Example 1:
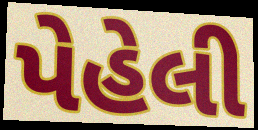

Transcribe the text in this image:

પેહેલી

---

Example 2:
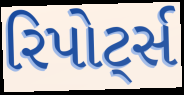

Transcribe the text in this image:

રિપોર્ટ્સ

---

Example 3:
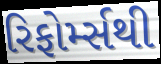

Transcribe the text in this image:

રિફોર્મ્સથી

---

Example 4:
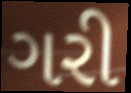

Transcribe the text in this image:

ગરી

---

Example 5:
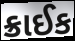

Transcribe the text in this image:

ક્રાઈક